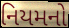
નિયમનો